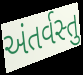
અંતર્વસ્તુ